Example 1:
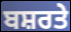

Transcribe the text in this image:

ਬਸ਼ਰਤੇ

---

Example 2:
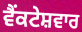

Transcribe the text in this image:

ਵੈਂਕਟੇਸ਼ਵਾਰ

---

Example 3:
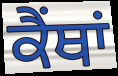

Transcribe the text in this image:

ਕੈਂਥਾਂ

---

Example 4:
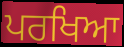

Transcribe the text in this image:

ਪਰਖਿਆ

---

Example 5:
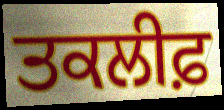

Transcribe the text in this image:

ਤਕਲੀਫ਼